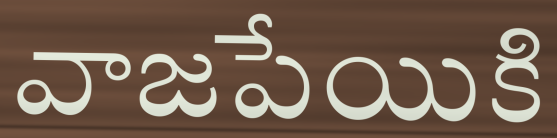
వాజపేయికి